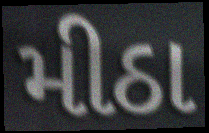
મીઠા